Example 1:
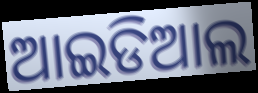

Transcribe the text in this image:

ଆଇଡିଆଲ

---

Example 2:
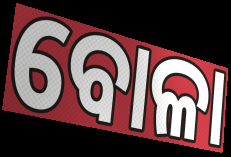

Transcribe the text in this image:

ବୋଳା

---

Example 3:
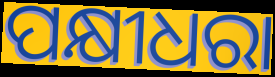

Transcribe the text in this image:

ପକ୍ଷୀଧରା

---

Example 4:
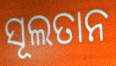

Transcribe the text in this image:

ସୂଲତାନ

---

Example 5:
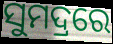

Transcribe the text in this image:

ସୁମଦ୍ରରେ